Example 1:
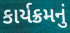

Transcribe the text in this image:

કાર્યક્રમનું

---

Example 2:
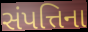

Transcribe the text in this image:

સંપત્તિના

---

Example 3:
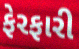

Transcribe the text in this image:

ફેરફારી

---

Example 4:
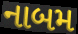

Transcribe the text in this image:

નાબમ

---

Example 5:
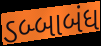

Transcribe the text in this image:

ડબ્બાબંધ